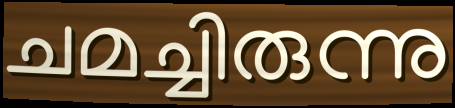
ചമച്ചിരുന്നു